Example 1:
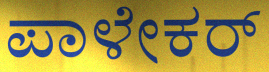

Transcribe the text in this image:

ಪಾಳೇಕರ್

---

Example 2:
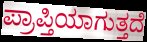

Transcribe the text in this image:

ಪ್ರಾಪ್ತಿಯಾಗುತ್ತದೆ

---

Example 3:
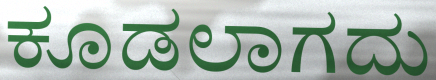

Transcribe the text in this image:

ಕೂಡಲಾಗದು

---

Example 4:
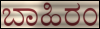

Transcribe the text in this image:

ಬಾಹಿರಂ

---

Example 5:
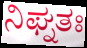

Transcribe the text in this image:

ನಿಘ್ನತಃ